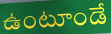
ఉంటూండే